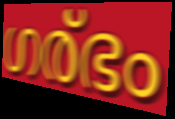
ഗര്ഭം